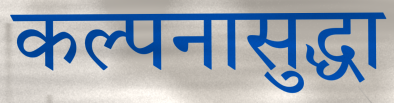
कल्पनासुद्धा